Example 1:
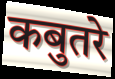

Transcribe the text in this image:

कबुतरे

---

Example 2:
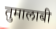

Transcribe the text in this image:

तुमालाबी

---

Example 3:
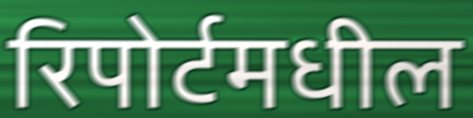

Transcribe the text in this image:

रिपोर्टमधील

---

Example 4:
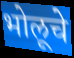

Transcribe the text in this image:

भोलूचे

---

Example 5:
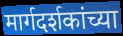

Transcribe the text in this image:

मार्गदर्शकांच्या